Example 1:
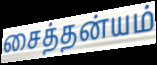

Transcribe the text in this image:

சைத்தன்யம்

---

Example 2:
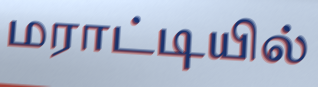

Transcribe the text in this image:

மராட்டியில்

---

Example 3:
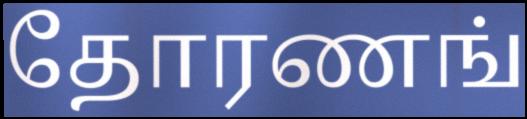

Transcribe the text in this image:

தோரணங்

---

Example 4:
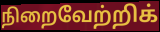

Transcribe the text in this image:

நிறைவேற்றிக்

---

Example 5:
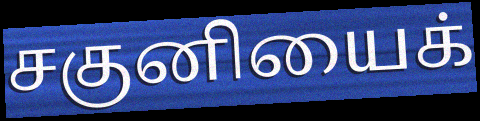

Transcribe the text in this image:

சகுனியைக்